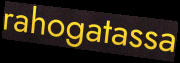
rahogatassa